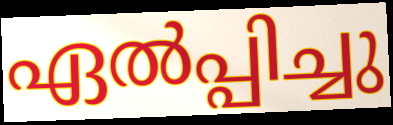
ഏൽപ്പിച്ചു